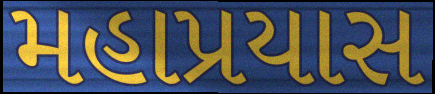
મહાપ્રયાસ